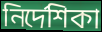
নির্দেশিকা